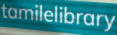
tamilelibrary